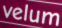
velum